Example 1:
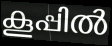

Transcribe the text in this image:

കൂപ്പിൽ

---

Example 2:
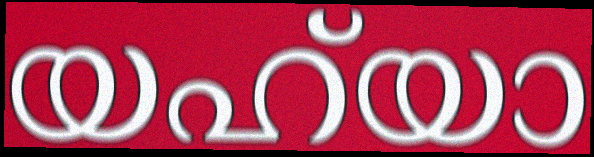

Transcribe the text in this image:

യഹ്‌യാ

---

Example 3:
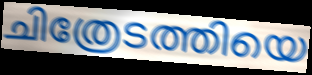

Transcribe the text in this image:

ചിത്രേടത്തിയെ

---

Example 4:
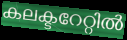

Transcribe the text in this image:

കലക്ടറേറ്റിൽ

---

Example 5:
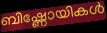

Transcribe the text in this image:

ബിഷ്ണോയികൾ